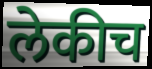
लेकीच